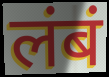
लंबं